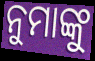
ନୁମାଙ୍କୁ